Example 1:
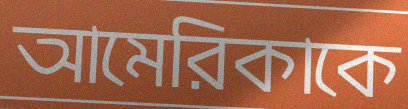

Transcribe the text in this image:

আমেরিকাকে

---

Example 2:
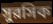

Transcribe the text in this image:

সুরসিক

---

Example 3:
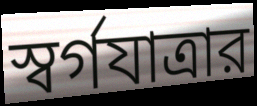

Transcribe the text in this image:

স্বর্গযাত্রার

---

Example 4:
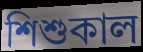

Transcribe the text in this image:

শিশুকাল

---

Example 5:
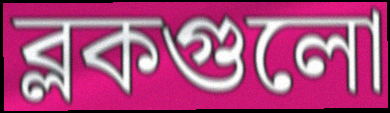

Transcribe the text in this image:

ব্লকগুলো